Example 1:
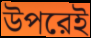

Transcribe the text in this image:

উপরেই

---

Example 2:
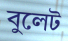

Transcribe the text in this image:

বুলেট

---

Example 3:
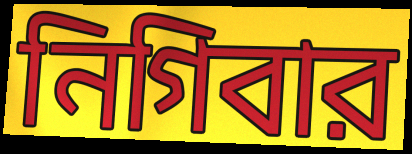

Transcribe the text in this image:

নিগিবার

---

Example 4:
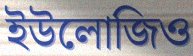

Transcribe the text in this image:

ইউলোজিও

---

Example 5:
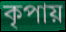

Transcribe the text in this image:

কৃপায়